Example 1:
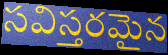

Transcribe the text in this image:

సవిస్తరమైన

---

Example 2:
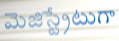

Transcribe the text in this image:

మెజిస్ట్రేటుగా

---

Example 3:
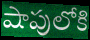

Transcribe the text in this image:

షాపులోకి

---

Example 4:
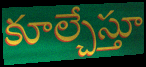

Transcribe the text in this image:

కూల్చేస్తూ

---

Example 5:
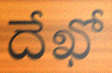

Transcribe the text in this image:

దేఖో